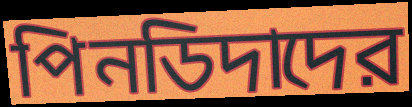
পিনডিদাদের